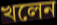
খলেন